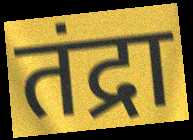
तंद्रा